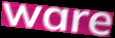
ware